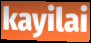
kayilai